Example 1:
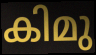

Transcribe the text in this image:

കിമു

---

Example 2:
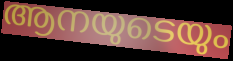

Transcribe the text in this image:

ആനയുടെയും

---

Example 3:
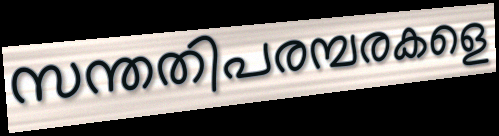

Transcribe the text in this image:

സന്തതിപരമ്പരകളെ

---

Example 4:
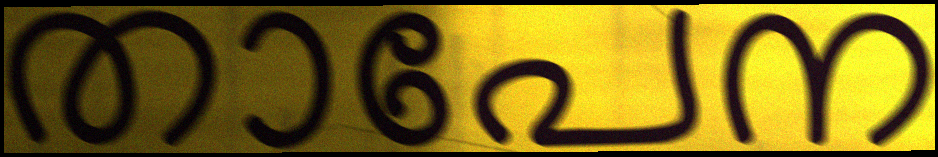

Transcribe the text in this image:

താപേന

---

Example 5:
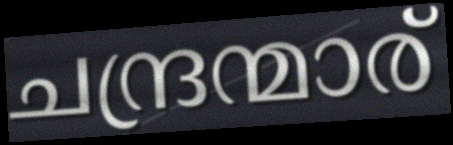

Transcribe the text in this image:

ചന്ദ്രന്മാര്